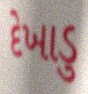
દેખાડુ